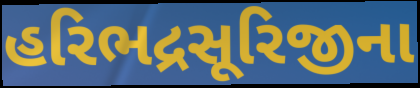
હરિભદ્રસૂરિજીના